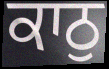
ਕਾਠੁ